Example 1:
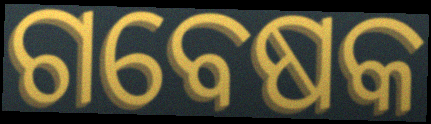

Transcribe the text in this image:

ଗବେଷକ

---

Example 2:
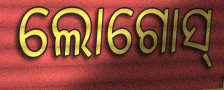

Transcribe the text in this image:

ଲୋଗୋସ୍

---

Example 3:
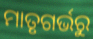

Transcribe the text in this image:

ମାତୃଗର୍ଭରୁ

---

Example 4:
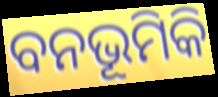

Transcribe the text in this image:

ବନଭୂମିକି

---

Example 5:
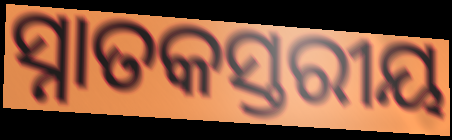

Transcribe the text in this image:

ସ୍ନାତକସ୍ତରୀୟ